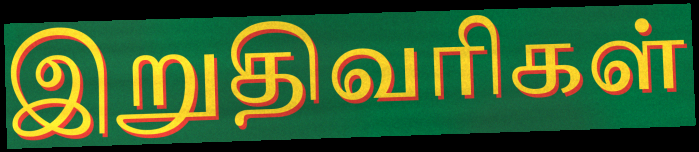
இறுதிவரிகள்